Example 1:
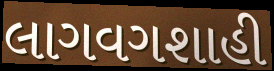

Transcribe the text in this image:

લાગવગશાહી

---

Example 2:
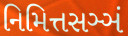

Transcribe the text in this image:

નિમિત્તસઞ્ઞં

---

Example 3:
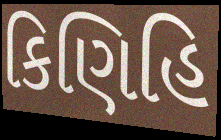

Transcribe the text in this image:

કિણિહિ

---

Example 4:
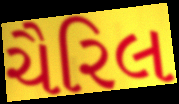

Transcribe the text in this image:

ચૈરિલ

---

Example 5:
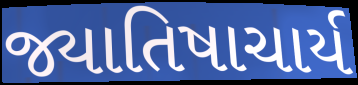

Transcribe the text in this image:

જ્યાતિષાચાર્ય